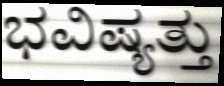
ಭವಿಷ್ಯತ್ತು